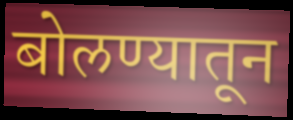
बोलण्यातून